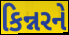
કિન્નરને